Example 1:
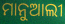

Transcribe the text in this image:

ମାନୁଆଲୀ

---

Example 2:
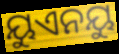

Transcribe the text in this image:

ୟୁଏନୟୁ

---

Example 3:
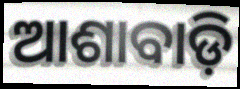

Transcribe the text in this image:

ଆଶାବାଡ଼ି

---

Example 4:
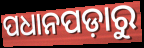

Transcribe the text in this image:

ପଧାନପଡ଼ାରୁ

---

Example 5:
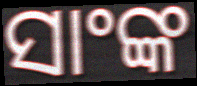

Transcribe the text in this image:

ସାଂଙ୍କ